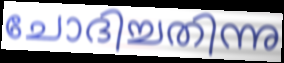
ചോദിച്ചതിന്നു